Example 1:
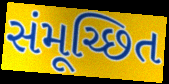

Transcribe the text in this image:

સંમૂચ્છિત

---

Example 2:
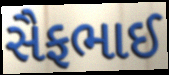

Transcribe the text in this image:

સૈફભાઈ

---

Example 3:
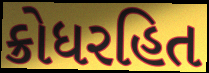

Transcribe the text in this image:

ક્રોધરહિત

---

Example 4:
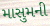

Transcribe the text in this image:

માસુમની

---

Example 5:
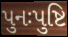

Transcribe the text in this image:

પુનઃપુષ્ટિ